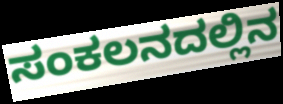
ಸಂಕಲನದಲ್ಲಿನ